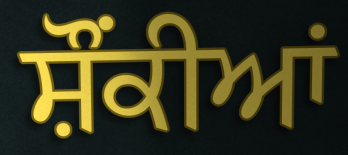
ਸ਼ੌਂਕੀਆਂ